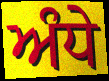
ਅੰਧੇ